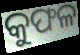
କୁଫଳ